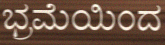
ಭ್ರಮೆಯಿಂದ